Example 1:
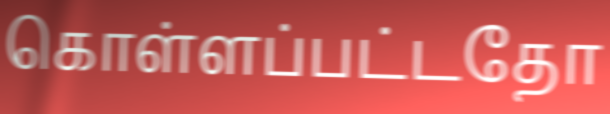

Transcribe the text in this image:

கொள்ளப்பட்டதோ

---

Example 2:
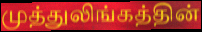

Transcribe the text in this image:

முத்துலிங்கத்தின்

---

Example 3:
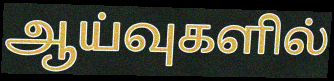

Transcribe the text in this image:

ஆய்வுகளில்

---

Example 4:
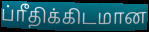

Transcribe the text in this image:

ப்ரீதிக்கிடமான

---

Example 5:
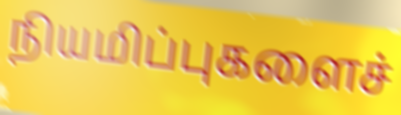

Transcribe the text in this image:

நியமிப்புகளைச்